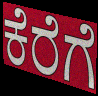
ಕೆರೆಗೆ